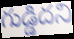
గుడ్డిదని